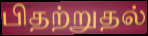
பிதற்றுதல்